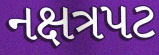
નક્ષત્રપટ